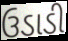
ઉડાડી